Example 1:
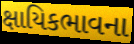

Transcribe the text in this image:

ક્ષાયિકભાવના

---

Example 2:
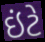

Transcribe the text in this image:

ઇંટે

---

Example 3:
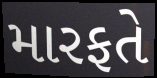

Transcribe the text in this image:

મારફતે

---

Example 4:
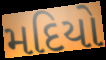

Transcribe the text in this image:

મદિયો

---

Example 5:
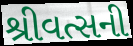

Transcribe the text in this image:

શ્રીવત્સની